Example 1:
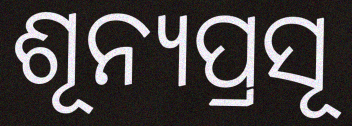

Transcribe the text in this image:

ଶୂନ୍ୟପ୍ରସୂ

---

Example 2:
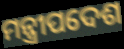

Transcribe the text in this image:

ମନ୍ତ୍ରୀପଦେଶ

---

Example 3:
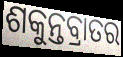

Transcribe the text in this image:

ଶକୁନ୍ତବ୍ରାତର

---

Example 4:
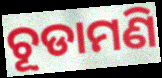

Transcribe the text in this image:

ଚୂଡାମଣି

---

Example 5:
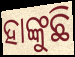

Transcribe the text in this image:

ହାଙ୍କୁଛି